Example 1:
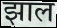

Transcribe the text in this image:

झाल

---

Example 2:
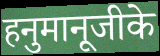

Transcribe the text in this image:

हनुमानूजीके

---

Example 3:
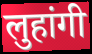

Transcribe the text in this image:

लुहांगी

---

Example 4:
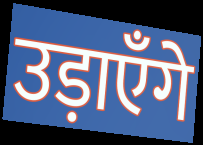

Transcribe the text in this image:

उड़ाएँगे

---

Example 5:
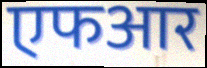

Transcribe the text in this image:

एफआर